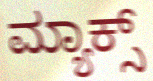
ಮ್ಯಾಕ್ಸ್